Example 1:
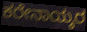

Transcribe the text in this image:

ಕರೇನಾಯ್ಕರ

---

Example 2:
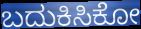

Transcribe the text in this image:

ಬದುಕಿಸಿಕೋ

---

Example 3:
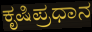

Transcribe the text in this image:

ಕೃಷಿಪ್ರಧಾನ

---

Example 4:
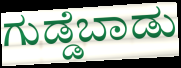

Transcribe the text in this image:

ಗುಡ್ಡೆಬಾಡು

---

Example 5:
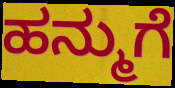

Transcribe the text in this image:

ಹನ್ಮುಗೆ